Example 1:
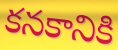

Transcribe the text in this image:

కనకానికి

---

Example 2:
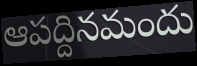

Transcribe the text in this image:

ఆపద్దినమందు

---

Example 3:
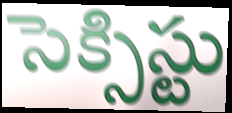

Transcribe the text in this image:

సెక్సిస్టు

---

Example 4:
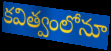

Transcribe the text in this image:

కవిత్వంలోనూ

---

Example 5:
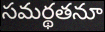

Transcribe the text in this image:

సమర్థతనూ